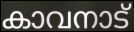
കാവനാട്